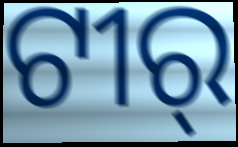
ଟୀର୍